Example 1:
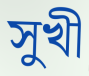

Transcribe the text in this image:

সুখী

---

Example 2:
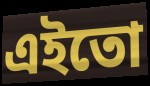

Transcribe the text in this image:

এইতো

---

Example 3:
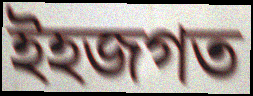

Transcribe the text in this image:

ইহজগত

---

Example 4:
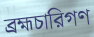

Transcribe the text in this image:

ব্রহ্মচারিগণ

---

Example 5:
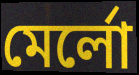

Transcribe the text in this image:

মের্লো